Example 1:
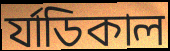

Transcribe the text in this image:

র্যাডিকাল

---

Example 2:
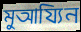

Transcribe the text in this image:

মুআয্যিন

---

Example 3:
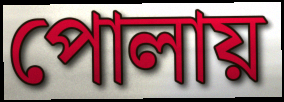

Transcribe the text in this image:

পোলায়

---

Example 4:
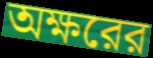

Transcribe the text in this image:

অক্ষরের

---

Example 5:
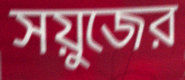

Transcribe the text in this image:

সয়ুজের